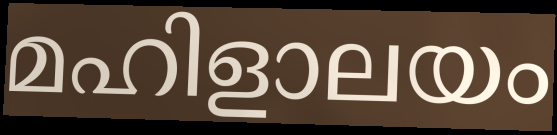
മഹിളാലയം